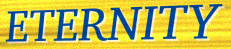
ETERNITY